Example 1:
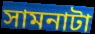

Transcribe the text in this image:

সামনাটা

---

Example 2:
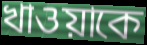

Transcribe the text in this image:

খাওয়াকে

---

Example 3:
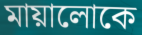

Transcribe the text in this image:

মায়ালোকে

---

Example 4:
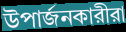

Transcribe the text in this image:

উপার্জনকারীরা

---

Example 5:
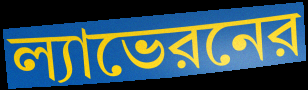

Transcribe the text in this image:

ল্যাভেরনের